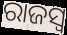
ରାଜସ୍ୱ